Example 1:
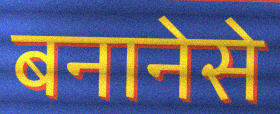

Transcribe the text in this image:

बनानेसे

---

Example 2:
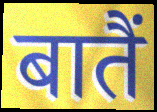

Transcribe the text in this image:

बातैं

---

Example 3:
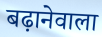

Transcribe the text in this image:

बढ़ानेवाला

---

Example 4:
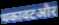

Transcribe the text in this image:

थकावटऔर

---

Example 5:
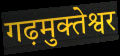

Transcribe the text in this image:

गढ़मुक्तेश्वर